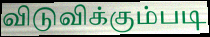
விடுவிக்கும்படி